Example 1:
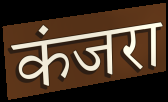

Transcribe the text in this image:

कंजरा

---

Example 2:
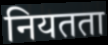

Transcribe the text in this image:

नियतता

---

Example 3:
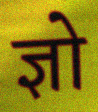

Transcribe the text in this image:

ज्ञो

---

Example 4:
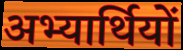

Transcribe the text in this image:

अभ्‍यार्थियों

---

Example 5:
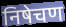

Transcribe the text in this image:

निषेचण